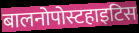
बालनोपोस्टहाइटिस